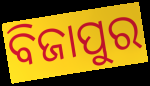
ବିଜାପୁର